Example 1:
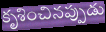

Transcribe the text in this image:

కృశించినప్పుడు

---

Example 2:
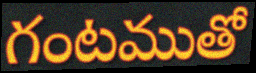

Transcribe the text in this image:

గంటముతో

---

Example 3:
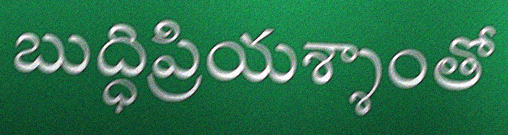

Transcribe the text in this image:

బుద్ధిప్రియశ్శాంతో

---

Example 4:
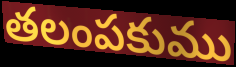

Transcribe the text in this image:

తలంపకుము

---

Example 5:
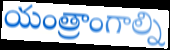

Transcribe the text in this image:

యంత్రాంగాల్ని